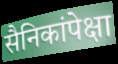
सैनिकांपेक्षा